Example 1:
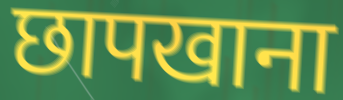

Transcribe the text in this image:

छापखाना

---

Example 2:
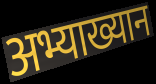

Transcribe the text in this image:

अभ्याख्यान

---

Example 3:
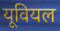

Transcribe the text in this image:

यूवियल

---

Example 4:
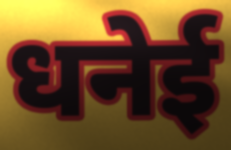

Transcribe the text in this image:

धनेई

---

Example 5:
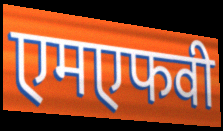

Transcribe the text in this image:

एमएफवी